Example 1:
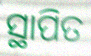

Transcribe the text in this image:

ସ୍ଥାପିତ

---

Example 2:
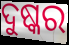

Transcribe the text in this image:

ଦୁଷ୍କର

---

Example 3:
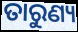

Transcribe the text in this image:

ତାରୁଣ୍ୟ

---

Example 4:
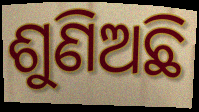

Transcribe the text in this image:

ଶୁଣିଅଛି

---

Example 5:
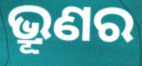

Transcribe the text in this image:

ଭ୍ରୂଣର